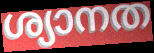
ശ്യാനത